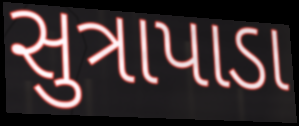
સુત્રાપાડા